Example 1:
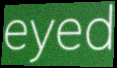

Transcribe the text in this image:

eyed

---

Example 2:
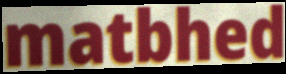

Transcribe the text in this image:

matbhed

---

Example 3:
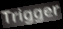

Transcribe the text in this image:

Trigger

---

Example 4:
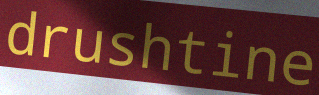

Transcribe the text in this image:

drushtine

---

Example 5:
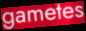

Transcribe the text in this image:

gametes